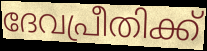
ദേവപ്രീതിക്ക്